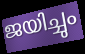
ജയിച്ചും